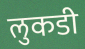
लुकडी